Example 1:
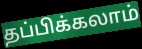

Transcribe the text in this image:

தப்பிக்கலாம்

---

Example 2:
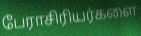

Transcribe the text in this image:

பேராசிரியர்களை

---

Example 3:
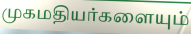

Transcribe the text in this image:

முகமதியர்களையும்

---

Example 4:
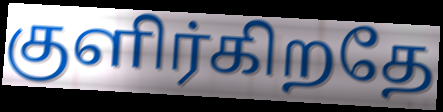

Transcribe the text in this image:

குளிர்கிறதே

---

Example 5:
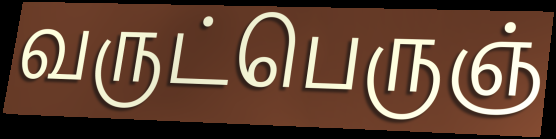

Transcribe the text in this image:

வருட்பெருஞ்